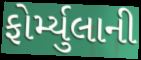
ફોર્મ્યુલાની